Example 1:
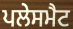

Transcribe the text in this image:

ਪਲੇਸਮੈਟ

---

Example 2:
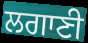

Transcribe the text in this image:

ਲਗਾਣੀ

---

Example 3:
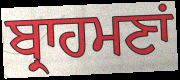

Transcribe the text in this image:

ਬ੍ਰਾਹਮਣਾਂ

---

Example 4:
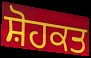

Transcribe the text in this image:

ਸ਼ੋਹਕਤ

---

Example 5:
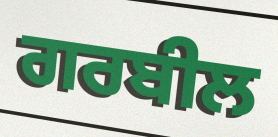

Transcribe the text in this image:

ਗਰਬੀਲ